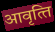
आवृत्‍ति